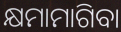
କ୍ଷମାମାଗିବା